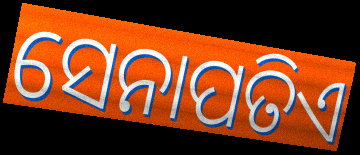
ସେନାପତିଏ